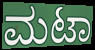
ಮಟಾ